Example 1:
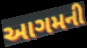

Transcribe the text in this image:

આગમની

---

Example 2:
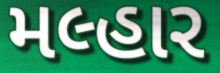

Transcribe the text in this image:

મલ્હાર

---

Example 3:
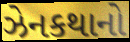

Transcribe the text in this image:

ઝેનકથાનો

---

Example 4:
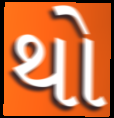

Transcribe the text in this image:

થો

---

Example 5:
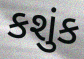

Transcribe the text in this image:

કશુંક